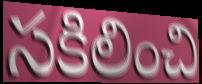
సకిలించి